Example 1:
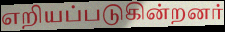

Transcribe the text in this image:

எறியப்படுகின்றனர்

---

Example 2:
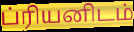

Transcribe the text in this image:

ப்ரியனிடம்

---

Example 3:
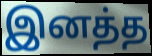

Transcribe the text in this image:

இனத்த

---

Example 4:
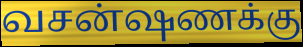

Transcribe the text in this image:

வசன்ஷணக்கு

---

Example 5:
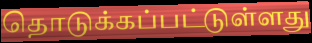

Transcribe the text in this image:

தொடுக்கப்பட்டுள்ளது